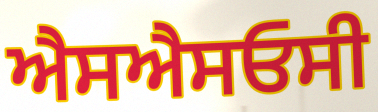
ਐਸਐਸਓਸੀ